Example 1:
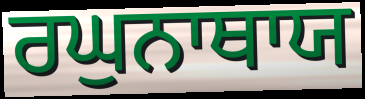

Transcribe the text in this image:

ਰਘੁਨਾਥਾਯ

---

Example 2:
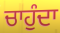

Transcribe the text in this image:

ਚਾਹੁੰਦਾ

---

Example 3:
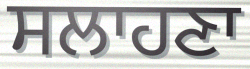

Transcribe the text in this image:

ਸਲਾਹਣਾ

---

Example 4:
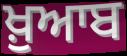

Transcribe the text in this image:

ਖ਼ੁਆਬ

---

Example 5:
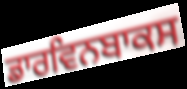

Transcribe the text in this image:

ਡਾਰਵਿਨਬਾਕਸ